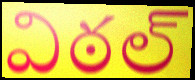
విఠల్